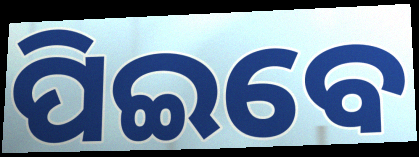
ପିଇବେ